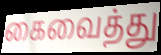
கைவைத்து